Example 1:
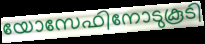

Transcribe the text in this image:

യോസേഫിനോടുകൂടി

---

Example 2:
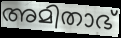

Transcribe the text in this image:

അമിതാഭ്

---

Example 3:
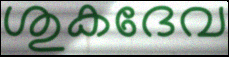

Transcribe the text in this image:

ശുകദേവ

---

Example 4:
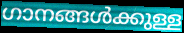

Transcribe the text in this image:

ഗാനങ്ങൾക്കുള്ള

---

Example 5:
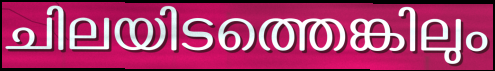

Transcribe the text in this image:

ചിലയിടത്തെങ്കിലും